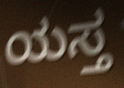
ಯಸ್ತ